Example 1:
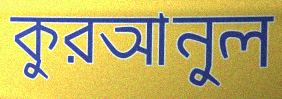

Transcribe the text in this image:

কুরআনুল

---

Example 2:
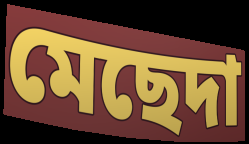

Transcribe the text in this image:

মেছেদা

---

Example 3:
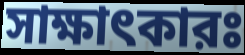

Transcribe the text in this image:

সাক্ষাৎকারঃ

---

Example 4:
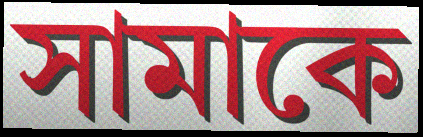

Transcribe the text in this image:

সামাকে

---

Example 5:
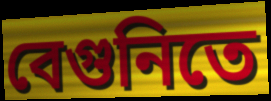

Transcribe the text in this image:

বেগুনিতে